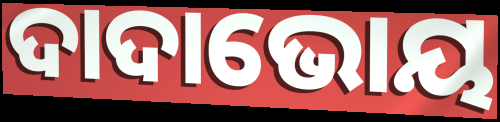
ଦାଦାଭୋୟ